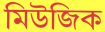
মিউজিক